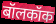
बॉलकॉक